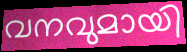
വനവുമായി